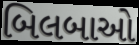
બિલબાઓ